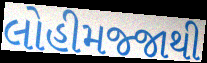
લોહીમજ્જાથી